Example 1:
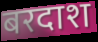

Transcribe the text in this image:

बरदाश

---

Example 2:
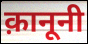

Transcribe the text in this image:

क़ानूनी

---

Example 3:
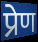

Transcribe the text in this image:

प्रेण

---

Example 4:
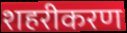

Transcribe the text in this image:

शहरीकरण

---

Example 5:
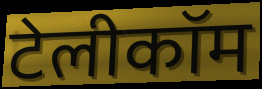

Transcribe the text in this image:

टेलीकॉम